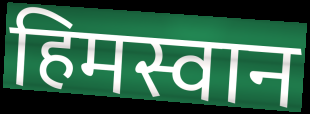
हिमस्वान